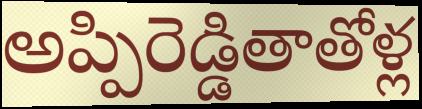
అప్పిరెడ్డితాతోళ్ల